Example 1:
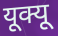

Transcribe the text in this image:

यूक्यू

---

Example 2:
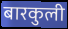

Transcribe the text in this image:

बारकुली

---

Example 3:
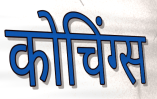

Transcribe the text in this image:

कोचिंग्स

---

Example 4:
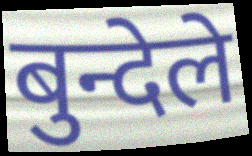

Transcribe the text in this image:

बुन्देले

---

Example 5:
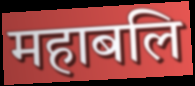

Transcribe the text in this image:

महाबलि